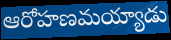
ఆరోహణమయ్యాడు